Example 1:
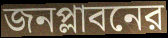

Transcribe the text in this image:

জনপ্লাবনের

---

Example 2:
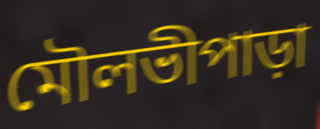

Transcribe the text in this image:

মৌলভীপাড়া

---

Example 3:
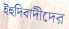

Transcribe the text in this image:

ইহুদিবাদীদের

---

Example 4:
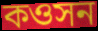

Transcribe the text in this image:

কওসন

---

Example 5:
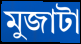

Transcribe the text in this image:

মুজাটা